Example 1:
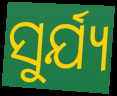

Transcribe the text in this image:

ସୁର୍ଯ୍ୟ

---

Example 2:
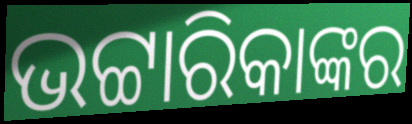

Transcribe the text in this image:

ଭଟ୍ଟାରିକାଙ୍କର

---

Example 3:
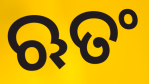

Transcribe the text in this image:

ଋତଂ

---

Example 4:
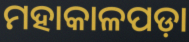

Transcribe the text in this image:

ମହାକାଳପଡ଼ା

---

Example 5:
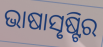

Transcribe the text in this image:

ଭାଷାସୃଷ୍ଟିର